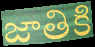
జాతికి